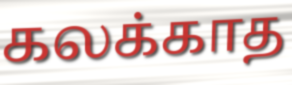
கலக்காத